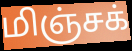
மிஞ்சக்